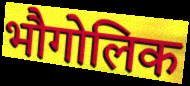
भौगोलिक